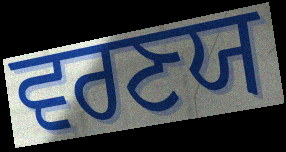
ਵਰਣਯ